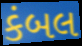
કંબલ